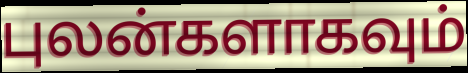
புலன்களாகவும்